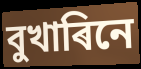
বুখাৰিনে